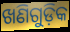
ଖଣିଗୁଡ଼ିକ